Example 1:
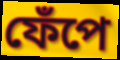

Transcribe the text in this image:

ফেঁপে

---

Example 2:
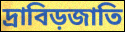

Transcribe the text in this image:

দ্রাবিড়জাতি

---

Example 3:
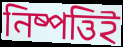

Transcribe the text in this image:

নিষ্পত্তিই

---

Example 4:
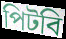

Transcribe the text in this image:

পিটবি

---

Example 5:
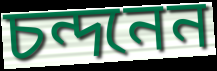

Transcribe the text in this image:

চন্দনেন